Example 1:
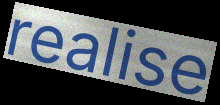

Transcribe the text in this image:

realise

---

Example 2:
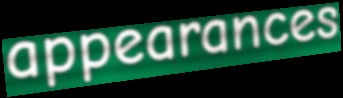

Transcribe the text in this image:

appearances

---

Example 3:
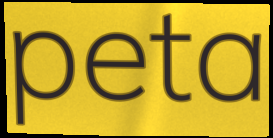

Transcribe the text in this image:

peta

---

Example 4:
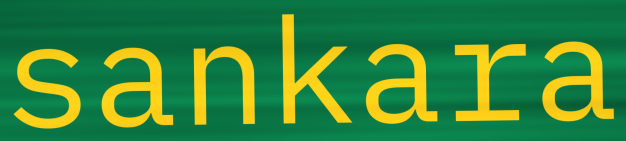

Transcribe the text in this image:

sankara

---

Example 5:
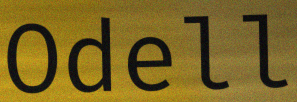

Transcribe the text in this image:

Odell